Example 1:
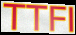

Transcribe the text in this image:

TTFI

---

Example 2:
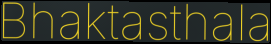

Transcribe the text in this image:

Bhaktasthala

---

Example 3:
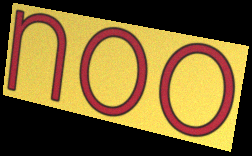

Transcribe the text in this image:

noo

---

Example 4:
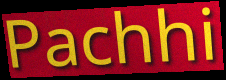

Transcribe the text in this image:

Pachhi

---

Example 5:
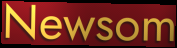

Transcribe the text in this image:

Newsom